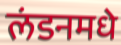
लंडनमधे